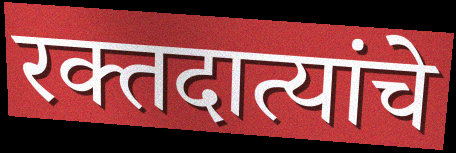
रक्तदात्यांचे